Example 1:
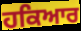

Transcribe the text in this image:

ਹਕਿਆਰ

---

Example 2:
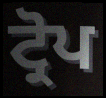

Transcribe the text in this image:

ਟ੍ਰੋਪ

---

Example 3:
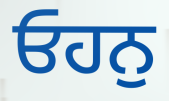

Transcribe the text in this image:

ਓਹਨੁ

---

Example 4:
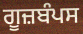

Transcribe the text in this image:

ਗੂਜ਼ਬੰਪਸ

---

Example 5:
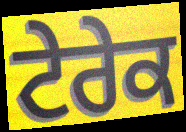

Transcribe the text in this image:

ਟੇਰੇਕ